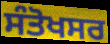
ਸੰਤੋਖਸਰ